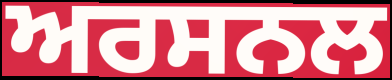
ਅਰਸਨਲ